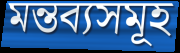
মন্তব্যসমূহ